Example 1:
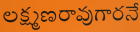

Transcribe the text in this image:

లక్ష్మణరావుగారనే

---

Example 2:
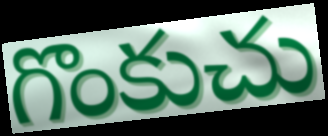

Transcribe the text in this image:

గొంకుచు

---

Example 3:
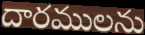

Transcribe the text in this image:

దారములను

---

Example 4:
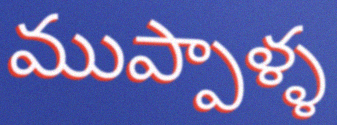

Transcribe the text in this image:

ముప్పాళ్ళ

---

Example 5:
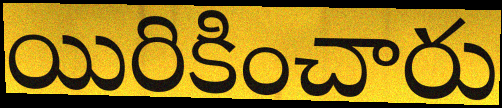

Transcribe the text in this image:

యిరికించారు